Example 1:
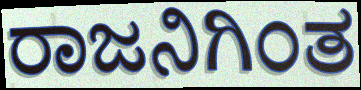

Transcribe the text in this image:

ರಾಜನಿಗಿಂತ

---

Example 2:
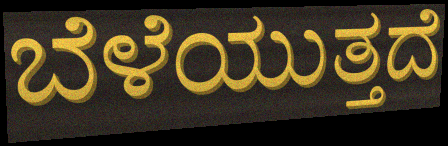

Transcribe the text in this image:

ಬೆಳೆಯುತ್ತದೆ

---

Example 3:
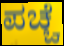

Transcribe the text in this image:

ಪಚ್ಚೆ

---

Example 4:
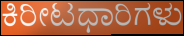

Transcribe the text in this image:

ಕಿರೀಟಧಾರಿಗಳು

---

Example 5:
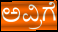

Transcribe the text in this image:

ಅವ್ರಿಗೆ